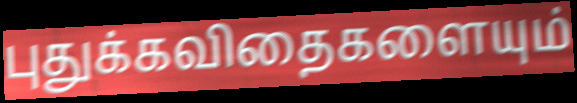
புதுக்கவிதைகளையும்